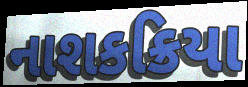
નાશકક્રિયા